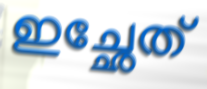
ഇച്ഛേത്